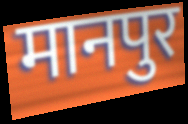
मानपुर